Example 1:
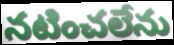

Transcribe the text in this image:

నటించలేను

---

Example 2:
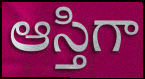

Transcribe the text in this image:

ఆస్తిగా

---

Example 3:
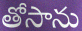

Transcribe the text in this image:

తోసాను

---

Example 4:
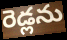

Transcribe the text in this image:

రెడ్లను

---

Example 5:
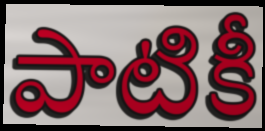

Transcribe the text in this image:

పాటికీ